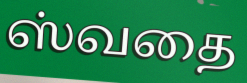
ஸ்வதை